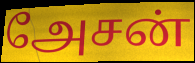
அேசன்